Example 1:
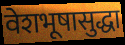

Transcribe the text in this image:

वेशभूषासुद्धा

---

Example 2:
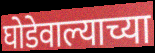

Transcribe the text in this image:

घोडेवाल्याच्या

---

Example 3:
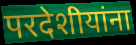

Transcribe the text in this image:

परदेशीयांना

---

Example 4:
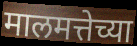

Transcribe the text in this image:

मालमत्तेच्या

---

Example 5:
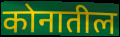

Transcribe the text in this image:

कोनातील